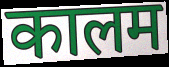
कालम